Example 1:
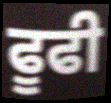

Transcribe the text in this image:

ਫੂਫੀ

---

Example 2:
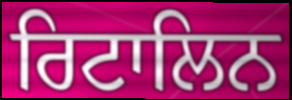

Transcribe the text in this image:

ਰਿਟਾਲਿਨ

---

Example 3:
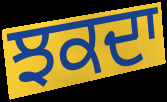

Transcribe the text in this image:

ਝਕਦਾ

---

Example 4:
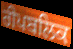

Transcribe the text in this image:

ਰੀਪਬਲਿਕ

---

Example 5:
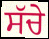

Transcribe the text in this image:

ਸੱਚੇ